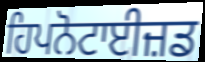
ਹਿਪਨੋਟਾਈਜ਼ਡ